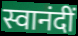
स्वानंदीं